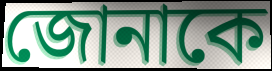
জোনাকে